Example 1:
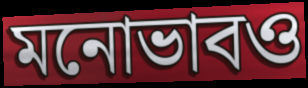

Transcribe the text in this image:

মনোভাবও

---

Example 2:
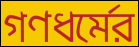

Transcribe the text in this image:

গণধর্মের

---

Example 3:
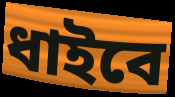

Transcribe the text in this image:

ধাইবে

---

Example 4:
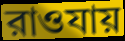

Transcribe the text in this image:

রাওযায়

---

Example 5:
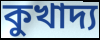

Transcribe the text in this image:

কুখাদ্য